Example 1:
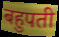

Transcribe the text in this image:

बहुपती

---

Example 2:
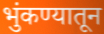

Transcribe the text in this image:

भुंकण्यातून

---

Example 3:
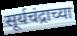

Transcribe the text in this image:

सूर्यचंद्राच्या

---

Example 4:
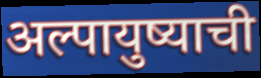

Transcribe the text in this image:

अल्पायुष्याची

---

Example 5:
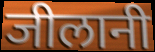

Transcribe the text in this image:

जीलानी